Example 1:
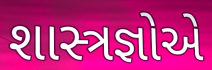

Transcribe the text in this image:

શાસ્ત્રજ્ઞોએ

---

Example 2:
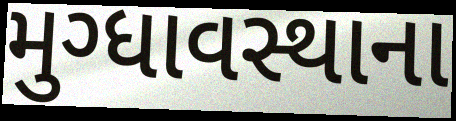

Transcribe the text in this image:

મુગ્ધાવસ્થાના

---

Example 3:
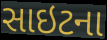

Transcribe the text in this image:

સાઇટના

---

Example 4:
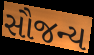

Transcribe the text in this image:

સૌજન્ય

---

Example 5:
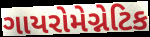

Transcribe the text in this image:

ગાયરોમેગ્નેટિક